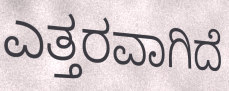
ಎತ್ತರವಾಗಿದೆ